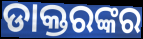
ଡାକ୍ତରଙ୍କର